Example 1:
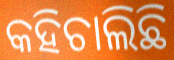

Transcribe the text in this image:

କହିଚାଲିଛି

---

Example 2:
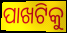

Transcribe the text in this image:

ପାଖଟିକୁ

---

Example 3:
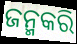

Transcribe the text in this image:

ଜନ୍ମକରି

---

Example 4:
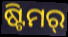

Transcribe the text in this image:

ଷ୍ଟିମର୍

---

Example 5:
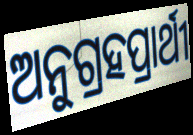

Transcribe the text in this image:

ଅନୁଗ୍ରହପ୍ରାର୍ଥୀ